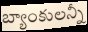
బ్యాంకులన్నీ